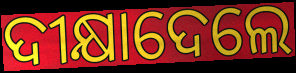
ଦୀକ୍ଷାଦେଲେ